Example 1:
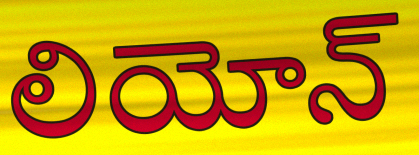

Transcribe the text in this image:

లియోన్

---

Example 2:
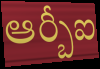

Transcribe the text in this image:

ఆర్బీఐ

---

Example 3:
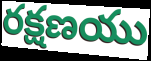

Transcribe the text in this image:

రక్షణయు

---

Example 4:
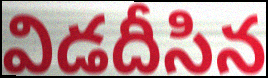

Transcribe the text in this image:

విడదీసిన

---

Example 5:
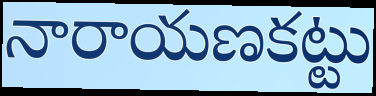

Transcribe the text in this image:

నారాయణకట్టు